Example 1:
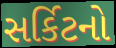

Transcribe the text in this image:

સર્કિટનો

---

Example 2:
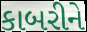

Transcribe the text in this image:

કાબરીને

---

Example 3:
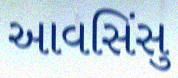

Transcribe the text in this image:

આવસિંસુ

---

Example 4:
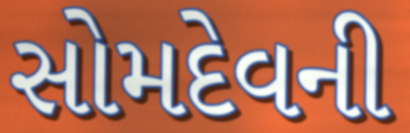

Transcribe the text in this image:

સોમદેવની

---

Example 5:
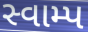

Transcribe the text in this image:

સ્વામ્પ